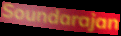
Soundarajan